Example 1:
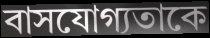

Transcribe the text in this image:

বাসযোগ্যতাকে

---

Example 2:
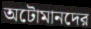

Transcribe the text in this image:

অটোমানদের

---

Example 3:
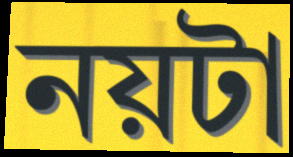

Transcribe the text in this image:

নয়টা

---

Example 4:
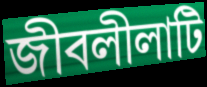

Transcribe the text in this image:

জীবলীলাটি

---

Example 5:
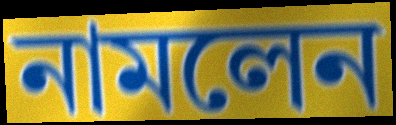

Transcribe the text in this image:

নামলেন